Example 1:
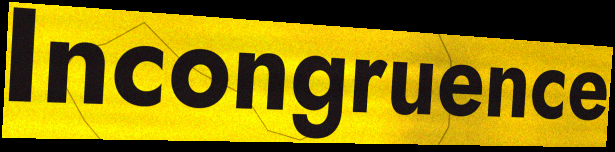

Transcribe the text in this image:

Incongruence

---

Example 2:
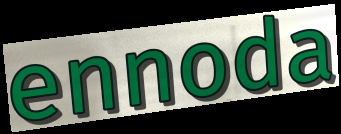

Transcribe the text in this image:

ennoda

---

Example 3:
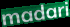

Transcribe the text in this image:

madari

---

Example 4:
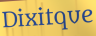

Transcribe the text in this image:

Dixitque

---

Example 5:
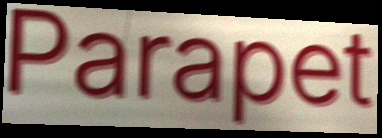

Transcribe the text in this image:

Parapet